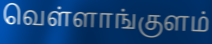
வெள்ளாங்குளம்